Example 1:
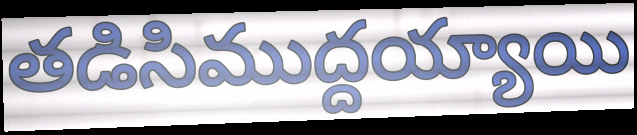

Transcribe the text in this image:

తడిసిముద్దయ్యాయి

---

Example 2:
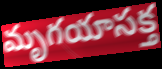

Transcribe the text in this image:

మృగయాసక్త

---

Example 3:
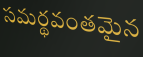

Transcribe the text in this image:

సమర్థవంతమైన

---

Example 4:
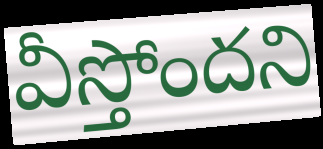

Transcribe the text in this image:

వీస్తోందని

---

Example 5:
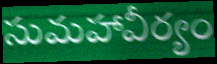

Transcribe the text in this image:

సుమహావీర్యం